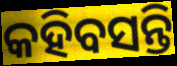
କହିବସନ୍ତି